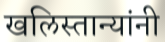
खलिस्तान्यांनी